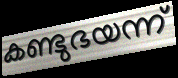
കണ്ടുഭയന്ന്